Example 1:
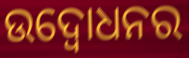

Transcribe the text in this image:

ଉଦ୍ବୋଧନର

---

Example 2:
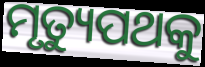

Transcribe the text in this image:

ମୃତ୍ୟୁପଥକୁ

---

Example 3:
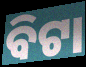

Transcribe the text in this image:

ବିଟା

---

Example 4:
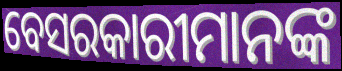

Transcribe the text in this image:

ବେସରକାରୀମାନଙ୍କ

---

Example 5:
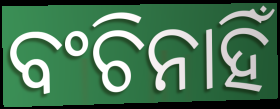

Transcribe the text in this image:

ବଂଚିନାହିଁ